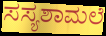
ಸಸ್ಯಶಾಮಲೆ